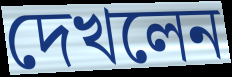
দেখলেন